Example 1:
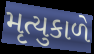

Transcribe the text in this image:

મૃત્યુકાળે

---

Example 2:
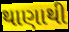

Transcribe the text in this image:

થાણાથી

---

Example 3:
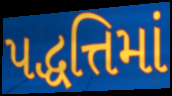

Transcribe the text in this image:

પદ્ધત્તિમાં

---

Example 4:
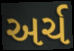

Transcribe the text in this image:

અર્ચ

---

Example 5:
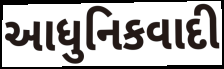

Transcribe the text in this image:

આધુનિકવાદી